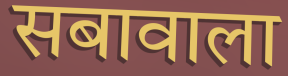
सबावाला